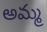
అమ్మ